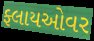
ફ્લાયઓવર